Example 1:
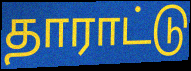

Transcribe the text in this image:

தாராட்டு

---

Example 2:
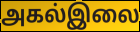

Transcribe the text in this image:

அகல்இலை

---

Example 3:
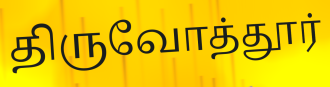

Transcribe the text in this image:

திருவோத்தூர்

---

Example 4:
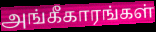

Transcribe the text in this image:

அங்கீகாரங்கள்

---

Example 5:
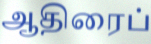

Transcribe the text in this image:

ஆதிரைப்